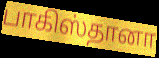
பாகிஸ்தானா